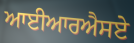
ਆਈਆਰਐਸਏ